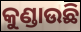
କୁଣ୍ଡାଉଛି